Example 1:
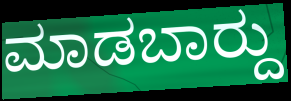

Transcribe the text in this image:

ಮಾಡಬಾರ್‍ದು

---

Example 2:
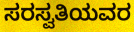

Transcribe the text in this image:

ಸರಸ್ವತಿಯವರ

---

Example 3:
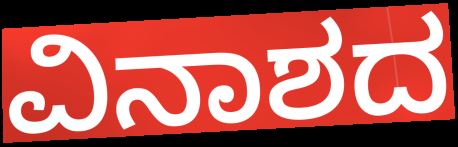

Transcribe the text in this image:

ವಿನಾಶದ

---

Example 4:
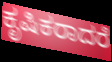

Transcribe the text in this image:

ಕೃಷಿಕರಾದರೆ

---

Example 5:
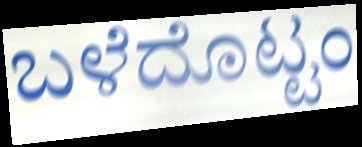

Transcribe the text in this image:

ಬಳೆದೊಟ್ಟಂ